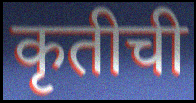
कृतीची